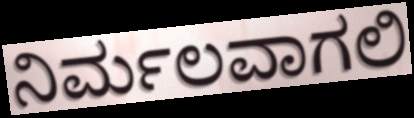
ನಿರ್ಮಲವಾಗಲಿ